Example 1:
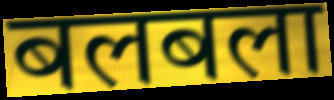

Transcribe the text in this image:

बलबला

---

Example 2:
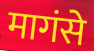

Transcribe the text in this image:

मागंसे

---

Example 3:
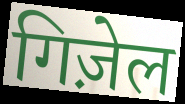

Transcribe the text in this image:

गिज़ेल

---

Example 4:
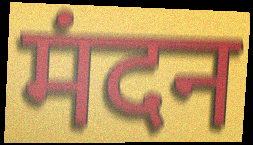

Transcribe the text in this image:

मंदन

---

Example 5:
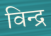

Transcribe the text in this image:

विन्द्र